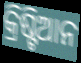
କ୍ରିଷ୍ଟିଆନ